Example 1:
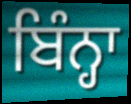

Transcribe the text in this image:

ਬਿੰਨ੍ਹਾ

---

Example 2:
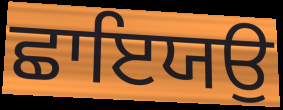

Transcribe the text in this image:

ਛਾਇਯਉ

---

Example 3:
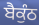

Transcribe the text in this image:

ਬੈਕੁੰਠ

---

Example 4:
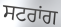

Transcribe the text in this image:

ਸਟਰਾਂਗ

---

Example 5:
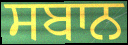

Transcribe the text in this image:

ਸਬਾਨ